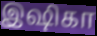
இஷிகா